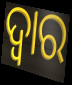
ଦ୍ୱାର